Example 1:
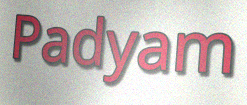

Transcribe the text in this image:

Padyam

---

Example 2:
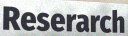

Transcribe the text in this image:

Reserarch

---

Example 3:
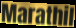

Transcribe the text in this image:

Marathil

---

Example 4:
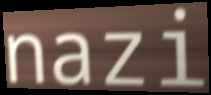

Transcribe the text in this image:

nazi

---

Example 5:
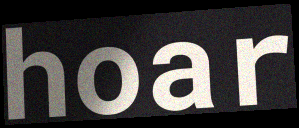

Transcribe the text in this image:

hoar